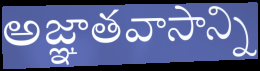
అజ్ఞాతవాసాన్ని